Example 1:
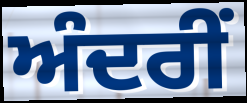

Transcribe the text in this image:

ਅੰਦਰੀਂ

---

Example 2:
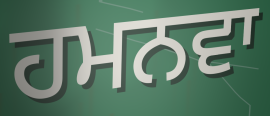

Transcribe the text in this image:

ਹਮਨਵਾ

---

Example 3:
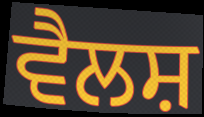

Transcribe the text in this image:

ਵੈਲਸ਼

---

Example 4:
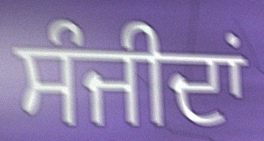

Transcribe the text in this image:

ਸੰਜੀਦਾਂ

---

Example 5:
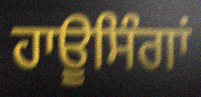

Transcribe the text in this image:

ਹਾਊਸਿੰਗਾਂ